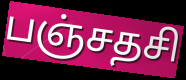
பஞ்சதசி